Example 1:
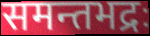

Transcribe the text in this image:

समन्तभद्रः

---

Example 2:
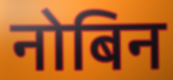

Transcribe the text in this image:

नोबिन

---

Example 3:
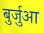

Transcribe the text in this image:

बुर्जुआ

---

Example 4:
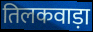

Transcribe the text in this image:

तिलकवाड़ा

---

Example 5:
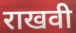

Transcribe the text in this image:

राखवी